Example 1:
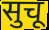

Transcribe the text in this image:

सुचू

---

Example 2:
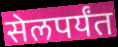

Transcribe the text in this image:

सेलपर्यंत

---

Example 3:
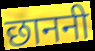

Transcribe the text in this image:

छाननी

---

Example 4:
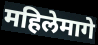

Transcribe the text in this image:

महिलेमागे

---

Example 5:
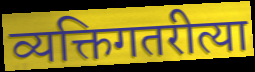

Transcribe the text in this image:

व्यक्तिगतरीत्या